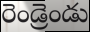
రెండ్రెండు